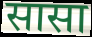
सासा